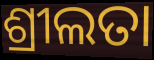
ଶ୍ରୀଲତା